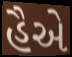
હૈએ